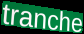
tranche